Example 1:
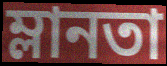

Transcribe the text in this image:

ম্লানতা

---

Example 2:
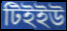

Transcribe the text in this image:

টিইইউ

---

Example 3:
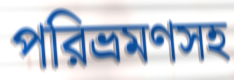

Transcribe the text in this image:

পরিভ্রমণসহ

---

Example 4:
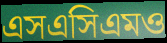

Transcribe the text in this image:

এসএসিএমও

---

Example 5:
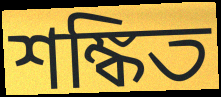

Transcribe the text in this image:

শঙ্কিত